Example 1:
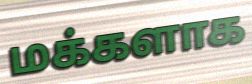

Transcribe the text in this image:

மக்களாக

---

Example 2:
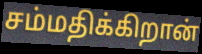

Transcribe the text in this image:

சம்மதிக்கிறான்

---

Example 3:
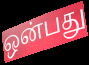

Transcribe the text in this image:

ஒன்பது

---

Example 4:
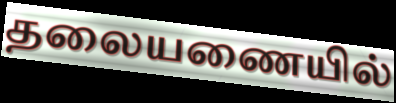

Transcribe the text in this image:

தலையணையில்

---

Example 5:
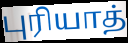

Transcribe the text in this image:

புரியாத்